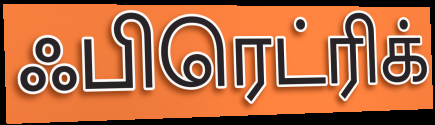
ஃபிரெட்ரிக்